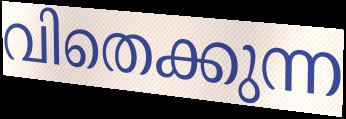
വിതെക്കുന്ന